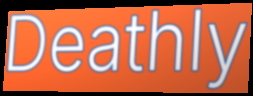
Deathly